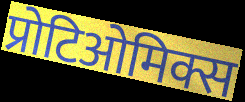
प्रोटिओमिक्स